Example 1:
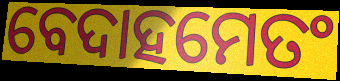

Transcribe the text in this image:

ବେଦାହମେତଂ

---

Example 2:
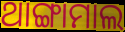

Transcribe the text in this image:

ଥାଙ୍ଗାମାଲ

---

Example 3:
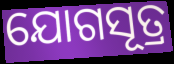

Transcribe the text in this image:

ଯୋଗସୂତ୍ର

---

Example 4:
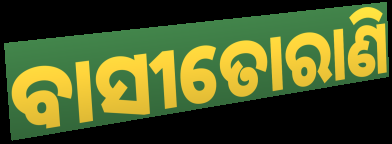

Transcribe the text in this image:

ବାସୀତୋରାଣି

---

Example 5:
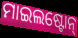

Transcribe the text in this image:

ମାଇଲଷ୍ଟୋନ୍